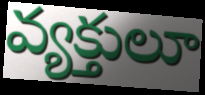
వ్యక్తులూ